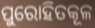
ପୁରୋହିତକୂଳ